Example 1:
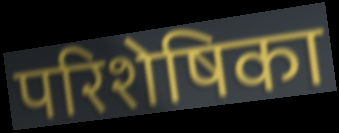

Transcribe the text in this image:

परिशेषिका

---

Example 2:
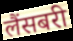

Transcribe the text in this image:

लैंसबरी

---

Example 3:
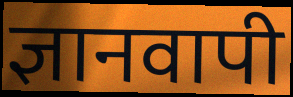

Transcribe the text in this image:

ज्ञानवापी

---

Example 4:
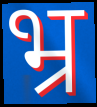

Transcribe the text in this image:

भ्र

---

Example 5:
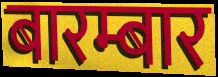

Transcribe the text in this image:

बारम्बार